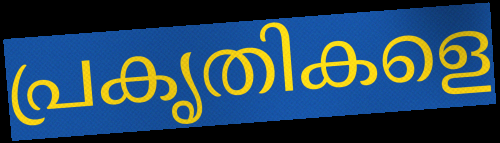
പ്രകൃതികളെ